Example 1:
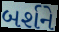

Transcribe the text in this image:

બર્શને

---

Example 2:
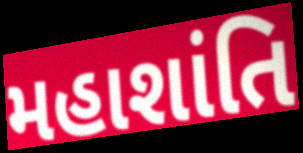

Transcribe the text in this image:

મહાશાંતિ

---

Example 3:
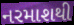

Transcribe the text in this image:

નરમાશથી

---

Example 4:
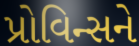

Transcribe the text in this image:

પ્રોવિન્સને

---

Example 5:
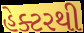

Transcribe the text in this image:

હેક્ટરથી